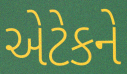
એટેકને